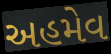
અહમેવ